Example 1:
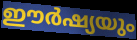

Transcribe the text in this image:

ഈർഷ്യയും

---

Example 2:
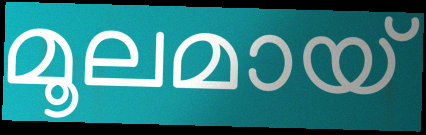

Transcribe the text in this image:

മൂലമായ്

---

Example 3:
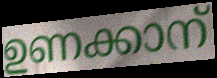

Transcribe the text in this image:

ഉണക്കാന്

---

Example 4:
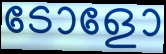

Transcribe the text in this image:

ടോളോ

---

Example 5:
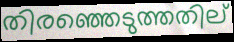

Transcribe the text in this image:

തിരഞ്ഞെടുത്തതില്